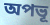
অপভূ